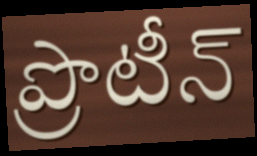
ప్రొటీన్